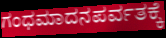
ಗಂಧಮಾದನಪರ್ವತಕ್ಕೆ